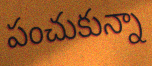
పంచుకున్నా